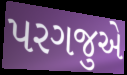
પરગજુએ